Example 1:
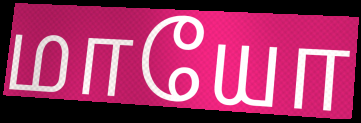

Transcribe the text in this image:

மாயோ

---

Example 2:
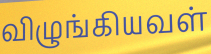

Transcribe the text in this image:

விழுங்கியவள்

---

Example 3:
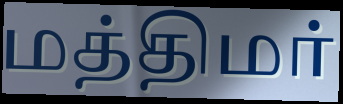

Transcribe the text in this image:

மத்திமர்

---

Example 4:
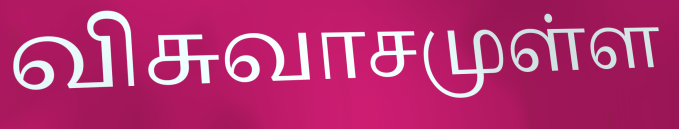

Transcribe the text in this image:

விசுவாசமுள்ள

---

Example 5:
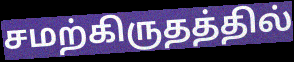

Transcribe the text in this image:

சமற்கிருதத்தில்